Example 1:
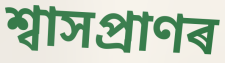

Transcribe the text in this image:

শ্বাসপ্ৰাণৰ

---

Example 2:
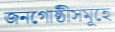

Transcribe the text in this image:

জনগোষ্ঠীসমূহে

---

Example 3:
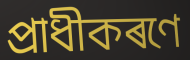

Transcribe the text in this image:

প্ৰাধীকৰণে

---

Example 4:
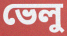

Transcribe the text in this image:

ভেলু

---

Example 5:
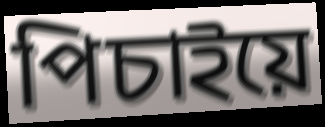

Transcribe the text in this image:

পিচাইয়ে